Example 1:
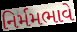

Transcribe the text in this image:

નિર્મમભાવે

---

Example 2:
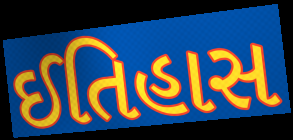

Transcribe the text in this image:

ઈતિહાસ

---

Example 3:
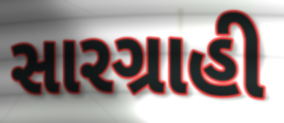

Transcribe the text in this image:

સારગ્રાહી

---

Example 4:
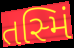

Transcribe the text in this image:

તસ્મિં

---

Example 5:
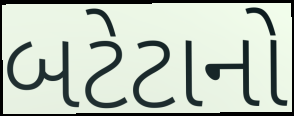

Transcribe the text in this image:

બટેટાનો